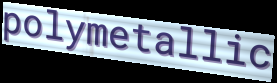
polymetallic